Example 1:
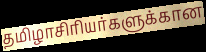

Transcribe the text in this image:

தமிழாசிரியர்களுக்கான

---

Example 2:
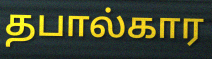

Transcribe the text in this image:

தபால்கார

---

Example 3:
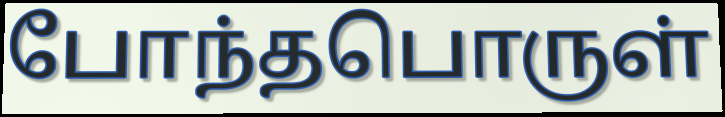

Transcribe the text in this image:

போந்தபொருள்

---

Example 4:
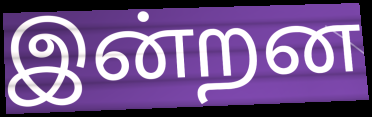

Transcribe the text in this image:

இன்றன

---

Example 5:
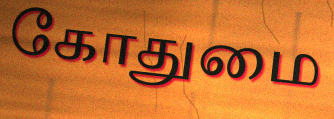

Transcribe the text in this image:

கோதுமை